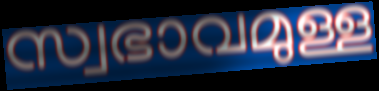
സ്വഭാവമുള്ള